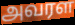
அவரள